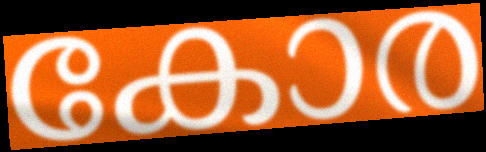
കോര